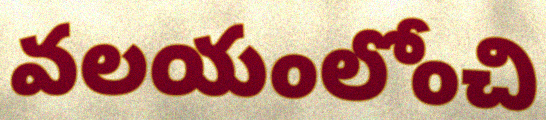
వలయంలోంచి